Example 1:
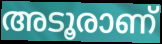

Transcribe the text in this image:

അടൂരാണ്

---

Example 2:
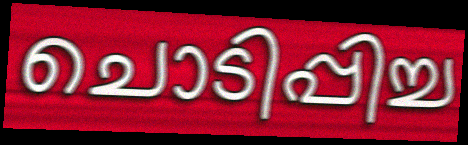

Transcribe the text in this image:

ചൊടിപ്പിച്ച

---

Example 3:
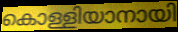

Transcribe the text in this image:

കൊള്ളിയാനായി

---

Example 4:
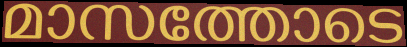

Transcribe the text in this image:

മാസത്തോടെ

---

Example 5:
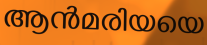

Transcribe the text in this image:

ആൻമരിയയെ